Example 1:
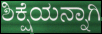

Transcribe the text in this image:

ಶಿಕ್ಷೆಯನ್ನಾಗಿ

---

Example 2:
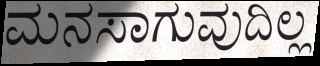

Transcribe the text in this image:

ಮನಸಾಗುವುದಿಲ್ಲ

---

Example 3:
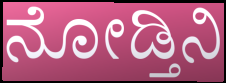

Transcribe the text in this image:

ನೋಡ್ತಿನಿ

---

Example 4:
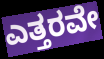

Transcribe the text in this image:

ಎತ್ತರವೇ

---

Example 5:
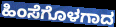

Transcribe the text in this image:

ಹಿಂಸೆಗೊಳಗಾದ